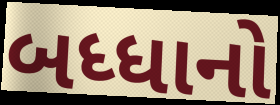
બધ્ધાનો